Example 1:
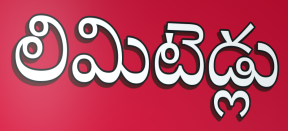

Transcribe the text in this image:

లిమిటెడ్లు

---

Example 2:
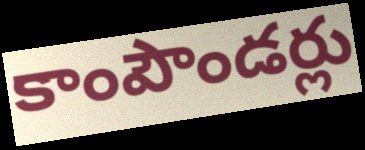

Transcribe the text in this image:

కాంపౌండర్లు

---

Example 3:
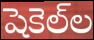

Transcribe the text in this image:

షెకెల్‌ల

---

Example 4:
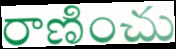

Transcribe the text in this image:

రాణించు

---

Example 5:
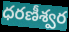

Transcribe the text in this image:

ధరణీశ్వర